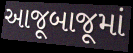
આજૂબાજૂમાં